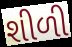
શીળી